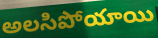
అలసిపోయాయి